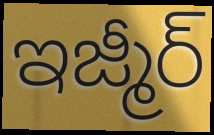
ఇజ్మీర్